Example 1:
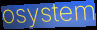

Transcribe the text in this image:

osystem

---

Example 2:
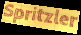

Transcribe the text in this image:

Spritzler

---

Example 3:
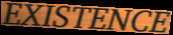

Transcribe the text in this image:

EXISTENCE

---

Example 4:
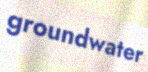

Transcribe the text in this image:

groundwater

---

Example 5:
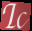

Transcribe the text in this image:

Ic